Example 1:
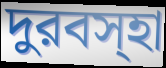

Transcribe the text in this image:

দুরবস্হা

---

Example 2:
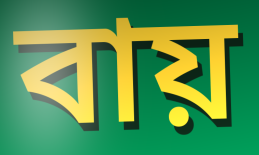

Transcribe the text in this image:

বায়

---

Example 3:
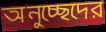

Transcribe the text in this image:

অনুচ্ছেদের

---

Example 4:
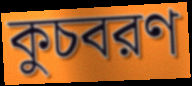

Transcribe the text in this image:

কুচবরণ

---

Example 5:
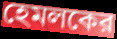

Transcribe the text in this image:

হেমলকের